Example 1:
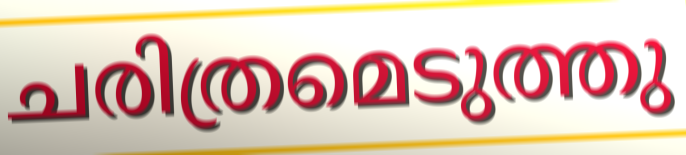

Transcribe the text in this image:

ചരിത്രമെടുത്തു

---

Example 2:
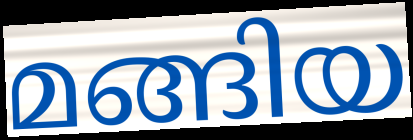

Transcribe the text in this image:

മങ്ങിയ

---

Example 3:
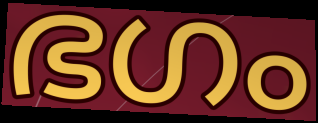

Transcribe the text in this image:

ഭഗം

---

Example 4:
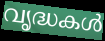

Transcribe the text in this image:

വൃദ്ധകൾ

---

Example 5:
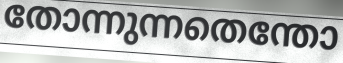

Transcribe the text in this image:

തോന്നുന്നതെന്തോ